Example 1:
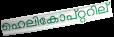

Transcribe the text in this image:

ഹെലികോപ്റ്ററില്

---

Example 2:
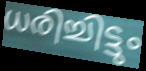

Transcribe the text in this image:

ധരിച്ചിട്ടും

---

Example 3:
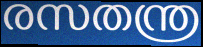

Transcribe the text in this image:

രസതന്ത്ര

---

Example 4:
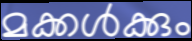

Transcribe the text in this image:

മക്കൾക്കും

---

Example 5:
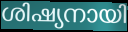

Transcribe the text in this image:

ശിഷ്യനായി